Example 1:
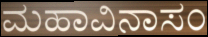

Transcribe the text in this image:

ಮಹಾವಿನಾಸಂ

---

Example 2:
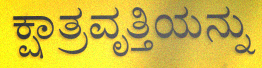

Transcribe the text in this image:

ಕ್ಷಾತ್ರವೃತ್ತಿಯನ್ನು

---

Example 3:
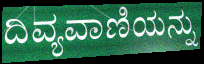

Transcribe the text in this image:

ದಿವ್ಯವಾಣಿಯನ್ನು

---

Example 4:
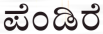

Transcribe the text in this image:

ಪೆಂಡಿರೆ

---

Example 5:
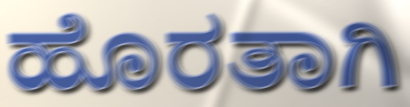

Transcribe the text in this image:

ಹೊರತಾಗಿ